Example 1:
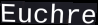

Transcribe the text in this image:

Euchre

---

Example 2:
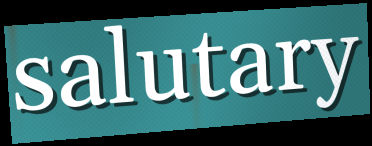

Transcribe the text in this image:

salutary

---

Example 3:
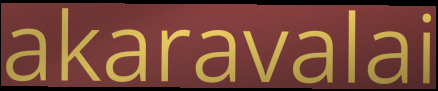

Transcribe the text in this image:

akaravalai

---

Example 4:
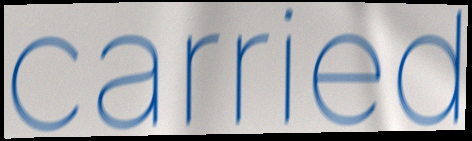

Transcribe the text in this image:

carried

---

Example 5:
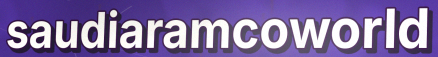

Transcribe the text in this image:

saudiaramcoworld